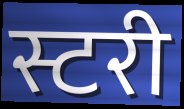
स्टरी